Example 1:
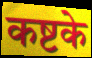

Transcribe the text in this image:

कष्टके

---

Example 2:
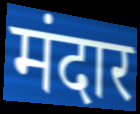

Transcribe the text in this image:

मंदार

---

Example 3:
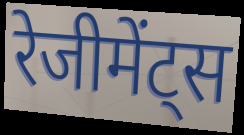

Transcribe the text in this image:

रेजीमेंट्स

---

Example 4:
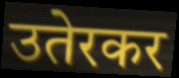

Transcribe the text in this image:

उतेरकर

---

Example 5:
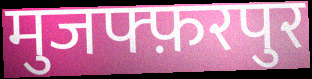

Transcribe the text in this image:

मुजफ्फ़रपुर